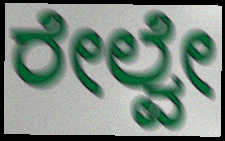
ರೇಲ್ವೇ